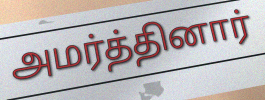
அமர்த்தினார்